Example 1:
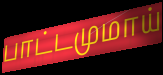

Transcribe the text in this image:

பாட்டமுமாய்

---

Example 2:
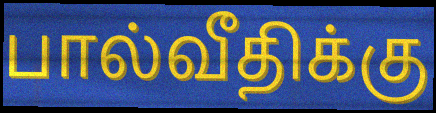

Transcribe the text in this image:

பால்வீதிக்கு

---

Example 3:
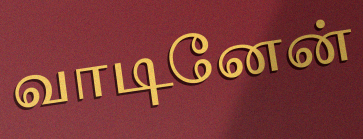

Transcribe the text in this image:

வாடினேன்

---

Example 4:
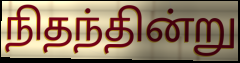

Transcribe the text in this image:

நிதந்தின்று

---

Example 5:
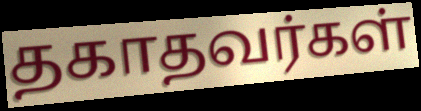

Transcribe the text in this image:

தகாதவர்கள்